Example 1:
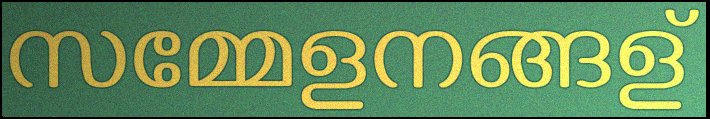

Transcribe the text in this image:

സമ്മേളനങ്ങള്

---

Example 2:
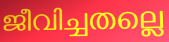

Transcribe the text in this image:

ജീവിച്ചതല്ലെ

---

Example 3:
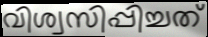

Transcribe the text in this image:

വിശ്വസിപ്പിച്ചത്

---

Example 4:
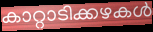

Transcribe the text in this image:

കാറ്റാടിക്കഴകൾ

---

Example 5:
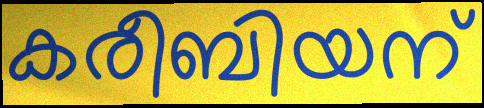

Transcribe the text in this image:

കരീബിയന്